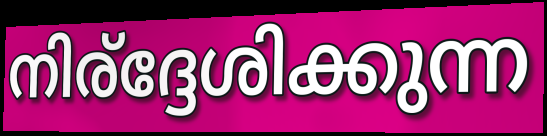
നിര്ദ്ദേശിക്കുന്ന